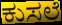
ಕುಸಲೆ